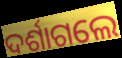
ଦର୍ଶାଗଲେ